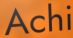
Achi